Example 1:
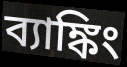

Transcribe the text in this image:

ব্যাঙ্কিং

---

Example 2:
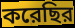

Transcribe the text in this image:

করেছির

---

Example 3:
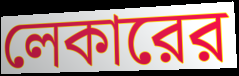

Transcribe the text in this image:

লেকারের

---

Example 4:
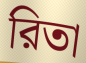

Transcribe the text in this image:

রিতা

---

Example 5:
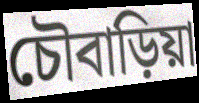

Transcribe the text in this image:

চৌবাড়িয়া